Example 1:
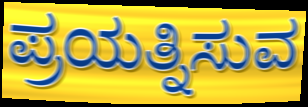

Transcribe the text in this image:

ಪ್ರಯತ್ನಿಸುವ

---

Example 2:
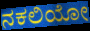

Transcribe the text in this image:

ನಕಲಿಯೋ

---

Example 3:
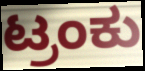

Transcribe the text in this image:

ಟ್ರಂಕು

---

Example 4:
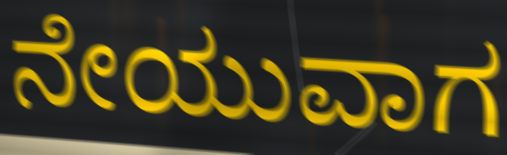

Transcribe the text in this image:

ನೇಯುವಾಗ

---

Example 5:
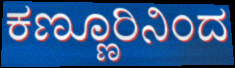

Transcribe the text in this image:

ಕಣ್ಣೂರಿನಿಂದ